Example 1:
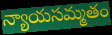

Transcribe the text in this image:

న్యాయసమ్మతం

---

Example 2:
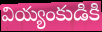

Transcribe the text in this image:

వియ్యంకుడికి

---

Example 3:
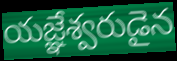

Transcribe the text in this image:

యజ్ఞేశ్వరుడైన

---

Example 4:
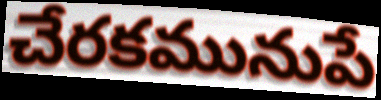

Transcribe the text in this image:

చేరకమునుపే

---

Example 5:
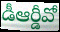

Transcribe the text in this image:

డీఆర్డీవో